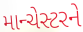
માન્ચેસ્ટરને